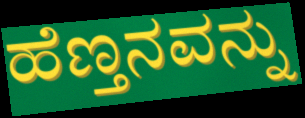
ಹೆಣ್ತನವನ್ನು